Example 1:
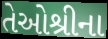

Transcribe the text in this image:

તેઓશ્રીના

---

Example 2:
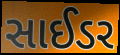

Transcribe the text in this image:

સાઈડર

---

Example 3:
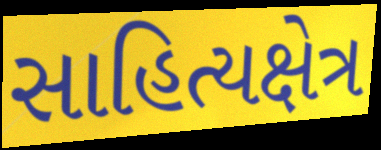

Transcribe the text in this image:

સાહિત્યક્ષેત્ર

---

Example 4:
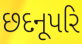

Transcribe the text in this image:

છદનૂપરિ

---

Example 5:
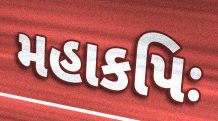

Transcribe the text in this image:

મહાકપિઃ